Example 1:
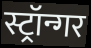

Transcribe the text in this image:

स्ट्रॉन्गर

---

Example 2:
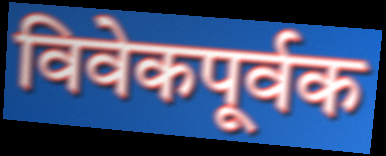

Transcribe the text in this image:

विवेकपूर्वक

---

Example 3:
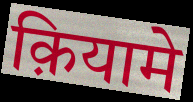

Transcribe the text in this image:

क़ियामे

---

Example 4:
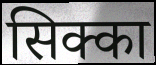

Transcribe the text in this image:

सिक्का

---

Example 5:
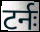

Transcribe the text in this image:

टर्नः